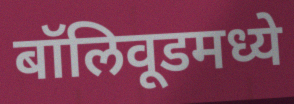
बॉलिवूडमध्ये